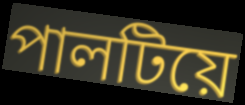
পালটিয়ে